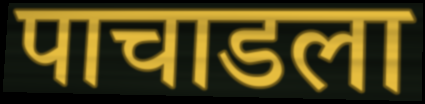
पाचाडला